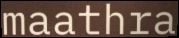
maathra